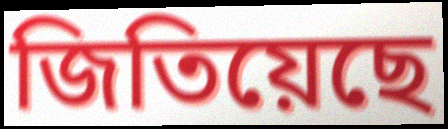
জিতিয়েছে